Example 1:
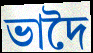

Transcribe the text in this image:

ভাদৈ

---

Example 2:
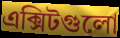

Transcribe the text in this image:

এক্সিটগুলো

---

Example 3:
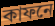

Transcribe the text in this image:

কাফনে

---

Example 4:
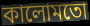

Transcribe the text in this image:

কালোমতো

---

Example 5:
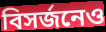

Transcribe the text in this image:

বিসর্জনেও